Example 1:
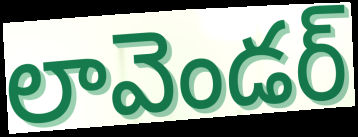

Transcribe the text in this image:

లావెండర్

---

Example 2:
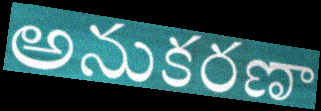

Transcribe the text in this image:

అనుకరణా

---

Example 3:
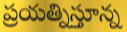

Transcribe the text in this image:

ప్రయత్నిస్తూన్న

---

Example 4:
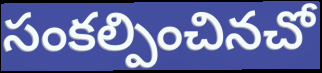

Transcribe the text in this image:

సంకల్పించినచో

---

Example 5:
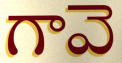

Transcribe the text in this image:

గావె